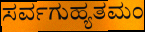
ಸರ್ವಗುಹ್ಯತಮಂ